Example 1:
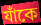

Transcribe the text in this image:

যাঁকে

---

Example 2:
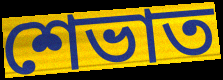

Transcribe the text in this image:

শেভাত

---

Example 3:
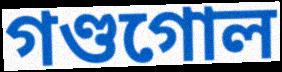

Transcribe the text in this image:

গণ্ডগোল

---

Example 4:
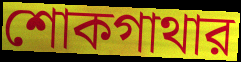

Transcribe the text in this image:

শোকগাথার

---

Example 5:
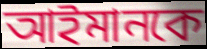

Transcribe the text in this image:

আইমানকে